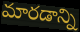
మారడాన్ని